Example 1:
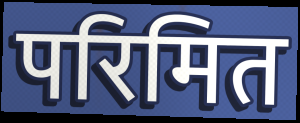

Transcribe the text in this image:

परिमित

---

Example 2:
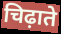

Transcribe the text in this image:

चिढ़ाते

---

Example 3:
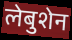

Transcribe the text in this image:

लेबुशेन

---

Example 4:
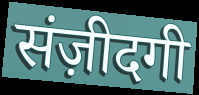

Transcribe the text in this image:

संज़ीदगी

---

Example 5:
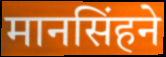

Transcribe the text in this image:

मानसिंहने